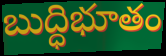
బుద్ధిభూతం